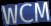
WCM